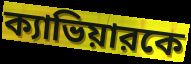
ক্যাভিয়ারকে